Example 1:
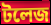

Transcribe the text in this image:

টলেজ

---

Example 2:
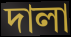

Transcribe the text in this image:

দালা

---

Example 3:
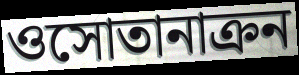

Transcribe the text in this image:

ওসোতানাক্রন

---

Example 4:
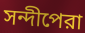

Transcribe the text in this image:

সন্দীপেরা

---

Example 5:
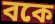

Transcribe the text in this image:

বকে